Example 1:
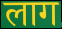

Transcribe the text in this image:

लाग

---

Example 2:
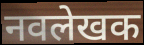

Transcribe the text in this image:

नवलेखक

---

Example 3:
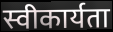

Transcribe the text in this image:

स्वीकार्यता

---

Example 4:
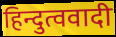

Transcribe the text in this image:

हिन्दुत्ववादी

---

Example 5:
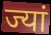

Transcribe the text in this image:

ज्यां